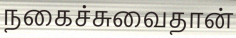
நகைச்சுவைதான்